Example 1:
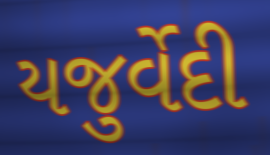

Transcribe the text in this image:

યજુર્વેદી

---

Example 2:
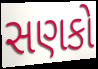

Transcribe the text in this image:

સણકો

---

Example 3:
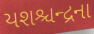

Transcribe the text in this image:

યશશ્ચન્દ્રના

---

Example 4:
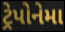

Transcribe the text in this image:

ટ્રેપોનેમા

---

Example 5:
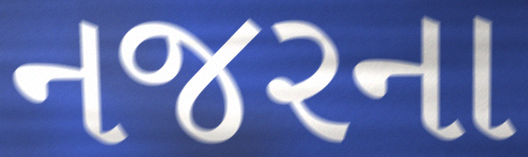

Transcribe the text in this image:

નજરના